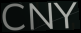
CNY